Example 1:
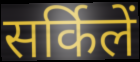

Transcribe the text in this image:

सर्किलें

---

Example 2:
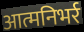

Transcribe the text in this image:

आत्मनिभर्र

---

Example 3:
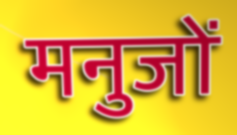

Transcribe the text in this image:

मनुजों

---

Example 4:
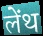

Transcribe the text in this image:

लेंथ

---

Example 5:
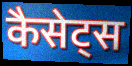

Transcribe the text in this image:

कैसेट्स